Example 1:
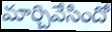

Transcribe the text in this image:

మార్చివేసిందో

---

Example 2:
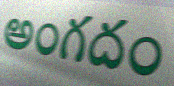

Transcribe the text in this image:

అంగదం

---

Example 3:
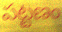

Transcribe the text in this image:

పట్టణం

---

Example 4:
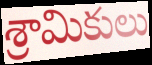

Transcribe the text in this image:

శ్రామికులు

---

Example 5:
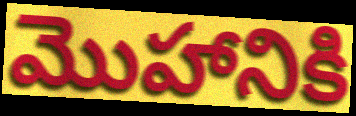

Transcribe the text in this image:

మొహానికి